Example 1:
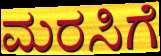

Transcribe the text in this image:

ಮರಸಿಗೆ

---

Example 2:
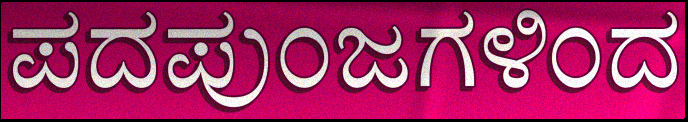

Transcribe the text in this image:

ಪದಪುಂಜಗಳಿಂದ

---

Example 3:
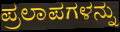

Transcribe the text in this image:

ಪ್ರಲಾಪಗಳನ್ನು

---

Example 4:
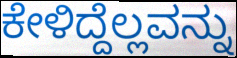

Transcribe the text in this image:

ಕೇಳಿದ್ದೆಲ್ಲವನ್ನು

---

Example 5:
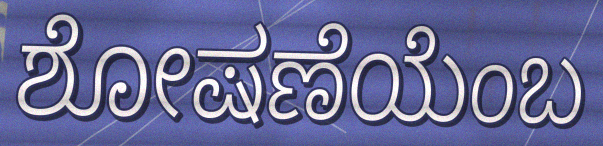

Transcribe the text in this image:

ಶೋಷಣೆಯೆಂಬ